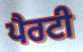
ਪੈਰਟੀ